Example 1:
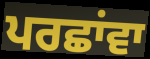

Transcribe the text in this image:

ਪਰਛਾਂਵਾ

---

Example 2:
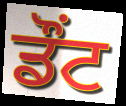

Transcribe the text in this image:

ਡੌਂਟ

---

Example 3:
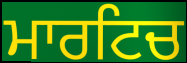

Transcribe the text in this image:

ਮਾਰਟਿਚ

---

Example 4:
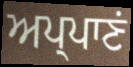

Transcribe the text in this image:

ਅਪ੍ਪਾਣਂ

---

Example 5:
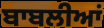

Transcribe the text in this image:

ਬਾਬਲੀਆਂ